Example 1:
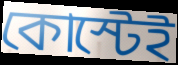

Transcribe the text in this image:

কোস্টেই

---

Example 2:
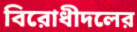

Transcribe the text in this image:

বিরোধীদলের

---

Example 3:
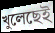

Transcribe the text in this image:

খুলেছেই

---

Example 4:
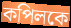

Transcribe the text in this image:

কপিলকে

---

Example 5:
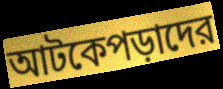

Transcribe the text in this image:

আটকেপড়াদের